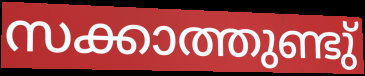
സക്കാത്തുണ്ടു്